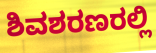
ಶಿವಶರಣರಲ್ಲಿ